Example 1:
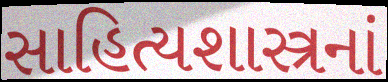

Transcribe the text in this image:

સાહિત્યશાસ્ત્રનાં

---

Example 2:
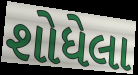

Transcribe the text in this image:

શોધેલા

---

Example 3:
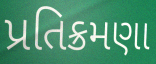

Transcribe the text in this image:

પ્રતિક્રમણા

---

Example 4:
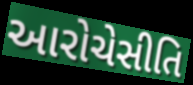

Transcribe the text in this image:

આરોચેસીતિ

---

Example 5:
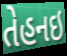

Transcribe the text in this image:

તેહનઇ